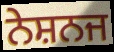
ਨੇਸ਼ਨਜ